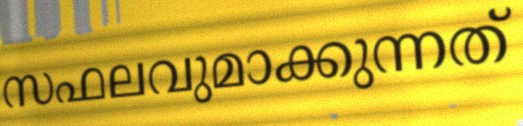
സഫലവുമാക്കുന്നത്